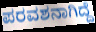
ಪರವಶನಾಗಿದ್ದೆ